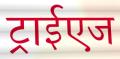
ट्राईएज